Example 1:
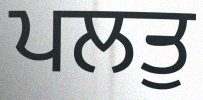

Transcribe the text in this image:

ਪਲਤੁ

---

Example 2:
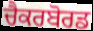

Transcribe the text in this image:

ਚੈਕਰਬੋਰਡ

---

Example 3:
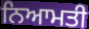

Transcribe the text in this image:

ਨਿਆਮਤੀ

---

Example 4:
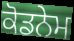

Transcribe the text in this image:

ਕੋਡਨੇਮ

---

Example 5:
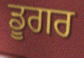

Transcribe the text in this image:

ਡੂਗਰ